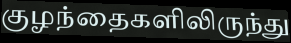
குழந்தைகளிலிருந்து